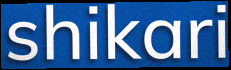
shikari